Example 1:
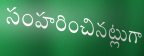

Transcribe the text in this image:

సంహరించినట్లుగా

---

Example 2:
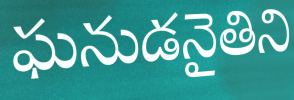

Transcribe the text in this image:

ఘనుడనైతిని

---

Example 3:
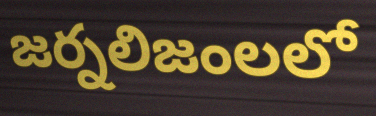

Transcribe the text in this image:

జర్నలిజంలలో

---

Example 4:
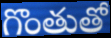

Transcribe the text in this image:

గొంతుతో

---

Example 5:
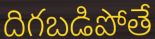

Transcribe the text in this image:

దిగబడిపోతే